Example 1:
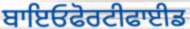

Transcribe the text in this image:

ਬਾਇਓਫੋਰਟੀਫਾਈਡ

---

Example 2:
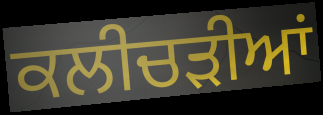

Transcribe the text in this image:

ਕਲੀਚੜੀਆਂ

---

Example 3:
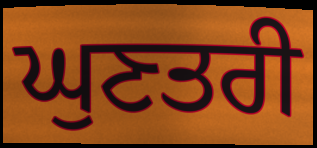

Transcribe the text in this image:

ਘੁਣਤਰੀ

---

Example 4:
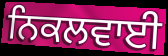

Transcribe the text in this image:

ਨਿਕਲਵਾਈ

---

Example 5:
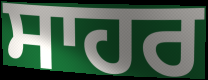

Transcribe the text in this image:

ਸਾਹਰ